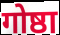
गोष्ठा